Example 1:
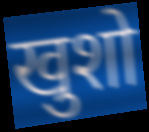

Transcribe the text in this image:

खुशो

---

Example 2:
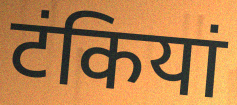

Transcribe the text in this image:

टंकियां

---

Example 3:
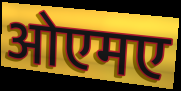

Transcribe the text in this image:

ओएमए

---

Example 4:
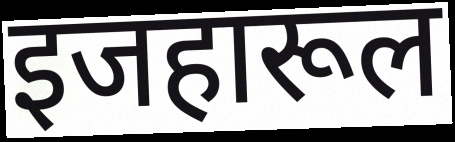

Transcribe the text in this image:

इजहारूल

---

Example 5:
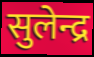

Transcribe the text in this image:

सुलेन्द्र